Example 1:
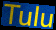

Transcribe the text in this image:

Tulu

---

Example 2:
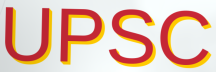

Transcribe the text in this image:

UPSC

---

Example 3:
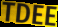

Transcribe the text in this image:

TDEE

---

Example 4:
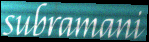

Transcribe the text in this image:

subramani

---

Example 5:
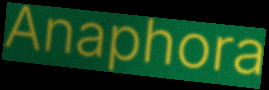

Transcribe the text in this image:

Anaphora